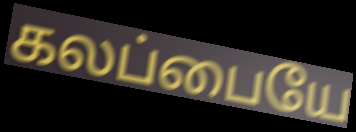
கலப்பையே